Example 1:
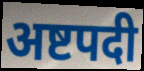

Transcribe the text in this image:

अष्टपदी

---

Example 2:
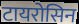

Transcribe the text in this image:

टायरोसिन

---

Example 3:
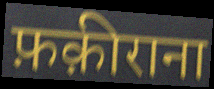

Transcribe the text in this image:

फ़क़ीराना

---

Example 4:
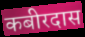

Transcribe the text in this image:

कबीरदास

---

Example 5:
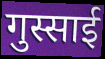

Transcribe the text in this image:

गुस्साई